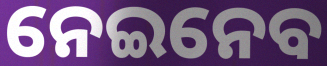
ନେଇନେବ